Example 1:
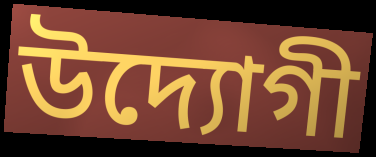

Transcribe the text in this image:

উদ্যোগী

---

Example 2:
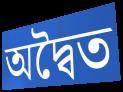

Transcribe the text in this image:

অদ্বৈত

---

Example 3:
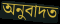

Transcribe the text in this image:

অনুবাদত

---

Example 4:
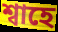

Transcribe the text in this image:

শ্বাহে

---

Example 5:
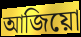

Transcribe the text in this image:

আজিয়ো